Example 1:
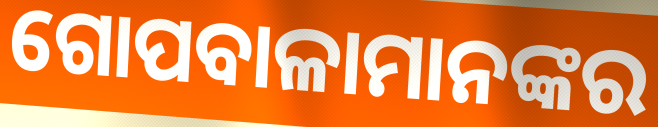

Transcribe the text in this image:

ଗୋପବାଳାମାନଙ୍କର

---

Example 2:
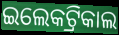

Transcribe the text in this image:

ଇଲେକଟ୍ରିକାଲ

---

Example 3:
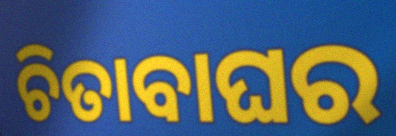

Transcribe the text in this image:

ଚିତାବାଘର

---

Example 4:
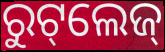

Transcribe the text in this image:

ରୁଟ୍‌ଲେଜ୍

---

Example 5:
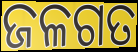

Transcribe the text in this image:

ଜଳଗତ